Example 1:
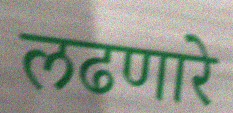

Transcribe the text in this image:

लढणारे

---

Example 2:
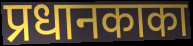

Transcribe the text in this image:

प्रधानकाका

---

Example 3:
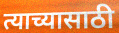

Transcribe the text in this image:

त्याच्यासाठी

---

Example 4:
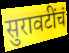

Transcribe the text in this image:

सुरावटींचं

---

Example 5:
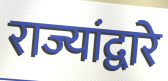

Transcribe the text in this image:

राज्यांद्वारे